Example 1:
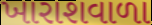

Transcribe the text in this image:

ખારાશવાળા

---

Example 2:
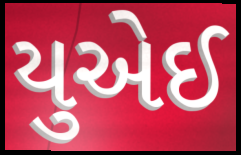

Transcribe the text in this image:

યુએઈ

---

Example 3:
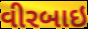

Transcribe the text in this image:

વીરબાઇ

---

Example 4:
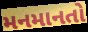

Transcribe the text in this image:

મનમાનતો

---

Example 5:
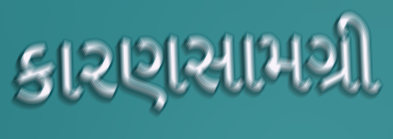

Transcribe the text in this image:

કારણસામગ્રી